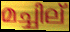
മച്ചില്